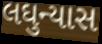
લઘુન્યાસ